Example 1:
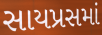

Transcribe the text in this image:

સાયપ્રસમાં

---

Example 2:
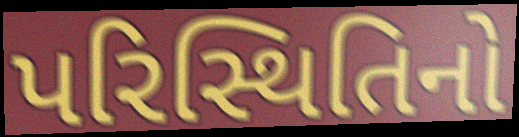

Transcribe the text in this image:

પરિસ્થિતિનો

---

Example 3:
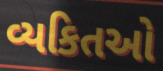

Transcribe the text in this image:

વ્યકિતઓ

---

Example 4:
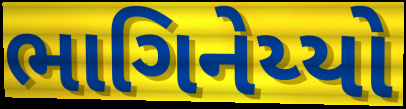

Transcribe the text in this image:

ભાગિનેય્યો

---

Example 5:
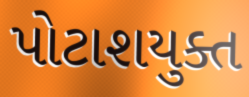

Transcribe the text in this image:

પોટાશયુક્ત